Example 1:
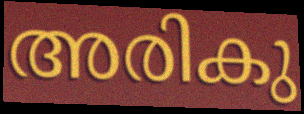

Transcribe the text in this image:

അരികു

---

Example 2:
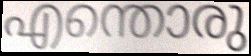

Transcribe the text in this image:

എന്തൊരു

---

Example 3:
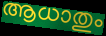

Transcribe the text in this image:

ആധാതും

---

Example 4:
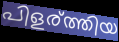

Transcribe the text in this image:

പിളര്ത്തിയ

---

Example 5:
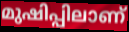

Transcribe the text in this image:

മുഷിപ്പിലാണ്